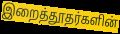
இறைத்தூதர்களின்